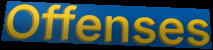
Offenses